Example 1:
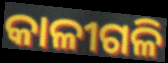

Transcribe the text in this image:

କାଳୀଗଳି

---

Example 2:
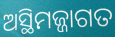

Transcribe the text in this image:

ଅସ୍ଥିମଜ୍ଜାଗତ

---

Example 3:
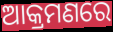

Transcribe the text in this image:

ଆକ୍ରମଣରେ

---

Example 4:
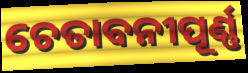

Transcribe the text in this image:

ଚେତାବନୀପୂର୍ଣ୍ଣ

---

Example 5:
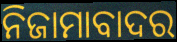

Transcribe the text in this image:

ନିଜାମାବାଦର